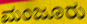
ಮಂಜೂರು